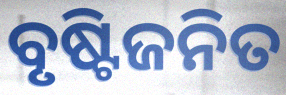
ବୃଷ୍ଟିଜନିତ